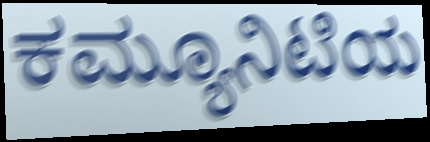
ಕಮ್ಯೂನಿಟಿಯ